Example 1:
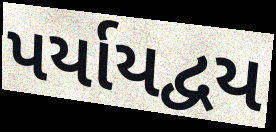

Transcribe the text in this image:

પર્યાયદ્વય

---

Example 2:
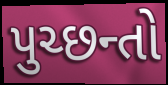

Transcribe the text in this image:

પુચ્છન્તો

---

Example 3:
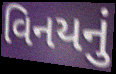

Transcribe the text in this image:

વિનયનું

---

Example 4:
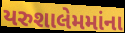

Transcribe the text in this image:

યરુશાલેમમાંના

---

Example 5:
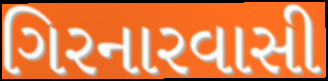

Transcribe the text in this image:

ગિરનારવાસી